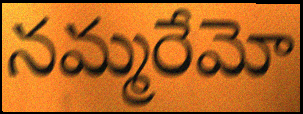
నమ్మరేమో